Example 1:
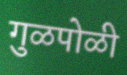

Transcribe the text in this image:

गुळपोळी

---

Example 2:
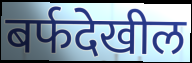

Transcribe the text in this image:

बर्फदेखील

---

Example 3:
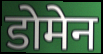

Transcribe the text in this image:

डोमेन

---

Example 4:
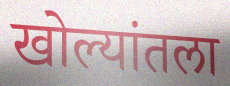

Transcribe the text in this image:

खोल्यांतला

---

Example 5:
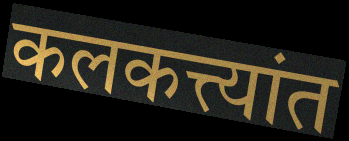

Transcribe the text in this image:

कलकत्त्यांत